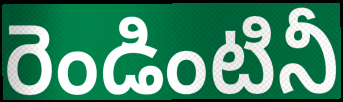
రెండింటినీ